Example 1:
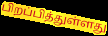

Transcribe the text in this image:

பிறப்பித்துள்ளது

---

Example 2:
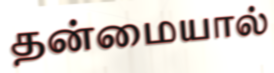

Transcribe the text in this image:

தன்மையால்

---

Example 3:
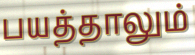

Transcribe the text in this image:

பயத்தாலும்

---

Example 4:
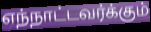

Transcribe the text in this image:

எந்நாட்டவர்க்கும்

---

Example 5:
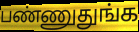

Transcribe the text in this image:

பண்ணுதுங்க